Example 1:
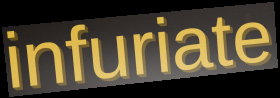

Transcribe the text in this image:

infuriate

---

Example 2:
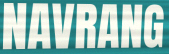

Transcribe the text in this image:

NAVRANG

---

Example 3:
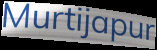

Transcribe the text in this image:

Murtijapur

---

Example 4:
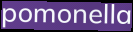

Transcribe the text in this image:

pomonella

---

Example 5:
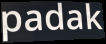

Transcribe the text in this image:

padak